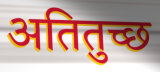
अतितुच्छ